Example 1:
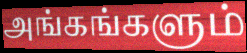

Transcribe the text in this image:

அங்கங்களும்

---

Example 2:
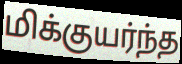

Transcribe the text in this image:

மிக்குயர்ந்த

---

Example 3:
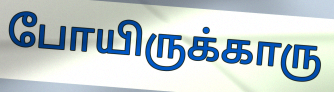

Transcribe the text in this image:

போயிருக்காரு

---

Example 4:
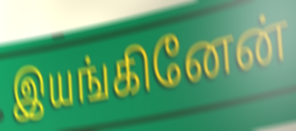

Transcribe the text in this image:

இயங்கினேன்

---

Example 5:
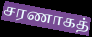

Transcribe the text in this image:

சரணாகத்